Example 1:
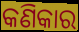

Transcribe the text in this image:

କଣିକାର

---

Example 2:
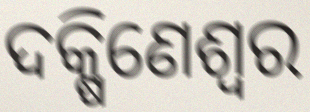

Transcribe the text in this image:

ଦକ୍ଷିଣେଶ୍ୱର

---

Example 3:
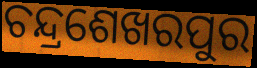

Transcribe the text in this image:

ଚନ୍ଦ୍ରଶେଖରପୁର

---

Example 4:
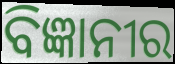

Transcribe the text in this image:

ବିଜ୍ଞାନୀର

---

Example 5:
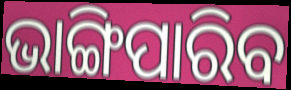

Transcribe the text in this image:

ଭାଙ୍ଗିପାରିବ